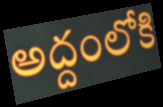
అద్దంలోకి